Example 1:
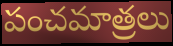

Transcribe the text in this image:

పంచమాత్రలు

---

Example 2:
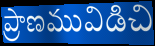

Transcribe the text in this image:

ప్రాణమువిడిచి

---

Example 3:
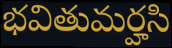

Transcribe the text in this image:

భవితుమర్హసి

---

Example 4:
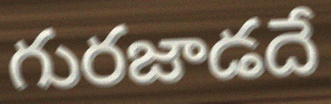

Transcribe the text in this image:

గురజాడదే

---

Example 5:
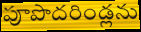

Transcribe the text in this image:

పూపొదరిండ్లను